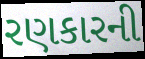
રણકારની